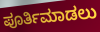
ಪೂರ್ತಿಮಾಡಲು